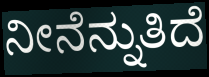
ನೀನೆನ್ನುತಿದೆ